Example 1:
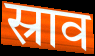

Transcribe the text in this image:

स्राव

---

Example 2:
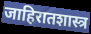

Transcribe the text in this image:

जाहिरातशास्त्र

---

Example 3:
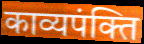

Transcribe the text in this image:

काव्यपंक्ति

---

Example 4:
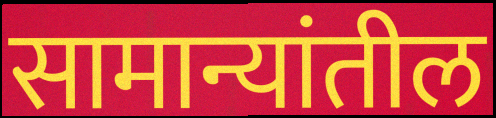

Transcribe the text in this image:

सामान्यांतील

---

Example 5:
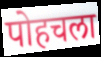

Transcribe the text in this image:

पोहचला